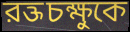
রক্তচক্ষুকে